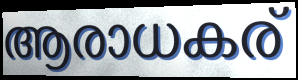
ആരാധകര്